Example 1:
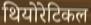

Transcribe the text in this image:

थियोरेटिकल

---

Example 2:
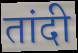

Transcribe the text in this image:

तांदी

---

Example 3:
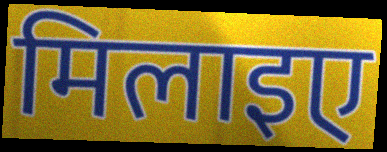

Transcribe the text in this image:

मिलाइए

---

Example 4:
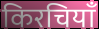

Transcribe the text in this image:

किरचियाँ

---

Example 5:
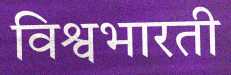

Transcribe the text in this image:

विश्वभारती